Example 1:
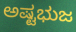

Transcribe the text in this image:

ಅಷ್ಟಭುಜ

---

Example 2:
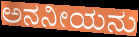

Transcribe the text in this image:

ಅನನೀಯನು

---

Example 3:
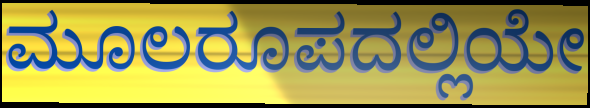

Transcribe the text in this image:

ಮೂಲರೂಪದಲ್ಲಿಯೇ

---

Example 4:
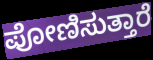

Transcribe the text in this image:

ಪೋಣಿಸುತ್ತಾರೆ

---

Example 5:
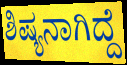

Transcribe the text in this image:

ಶಿಷ್ಯನಾಗಿದ್ದೆ